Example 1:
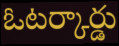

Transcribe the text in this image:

ఓటర్కార్డు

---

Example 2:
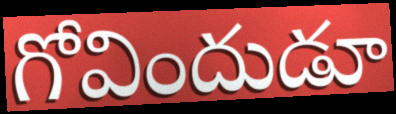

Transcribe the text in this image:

గోవిందుడూ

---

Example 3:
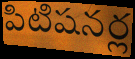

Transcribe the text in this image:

పిటిషనర్ల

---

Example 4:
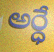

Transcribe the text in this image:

అర్ధే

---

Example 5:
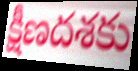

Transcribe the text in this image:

క్షీణదశకు